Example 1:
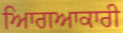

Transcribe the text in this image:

ਆਿਗਆਕਾਰੀ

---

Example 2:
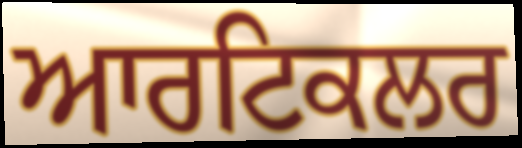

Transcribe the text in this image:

ਆਰਟਿਕਲਰ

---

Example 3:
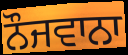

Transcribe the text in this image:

ਨੌਜਵਾਨਾ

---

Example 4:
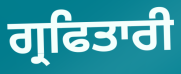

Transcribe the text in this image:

ਗ੍ਰਫਿਤਾਰੀ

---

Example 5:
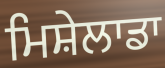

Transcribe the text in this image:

ਮਿਸ਼ੇਲਾਡਾ